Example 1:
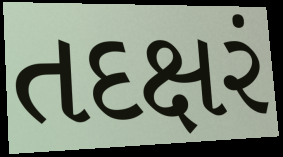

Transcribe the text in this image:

તદક્ષરં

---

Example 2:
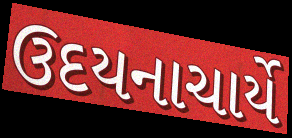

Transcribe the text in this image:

ઉદયનાચાર્યે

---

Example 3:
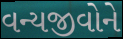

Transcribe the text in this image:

વન્યજીવોને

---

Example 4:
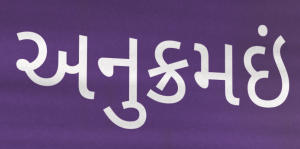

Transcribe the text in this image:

અનુક્રમઇં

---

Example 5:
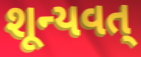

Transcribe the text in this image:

શૂન્યવત્